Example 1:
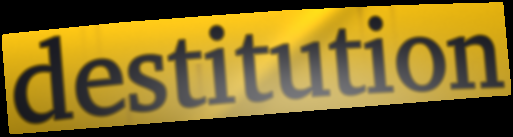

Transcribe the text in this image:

destitution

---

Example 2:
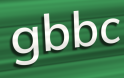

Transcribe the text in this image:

gbbc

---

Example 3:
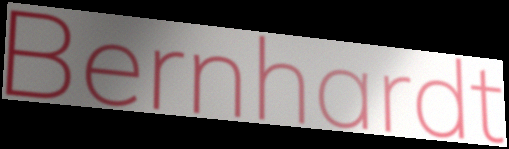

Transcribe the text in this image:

Bernhardt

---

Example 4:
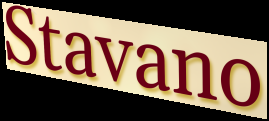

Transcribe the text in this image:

Stavano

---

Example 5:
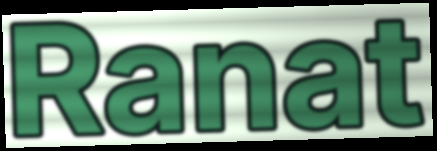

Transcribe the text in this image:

Ranat